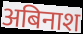
अबिनाश